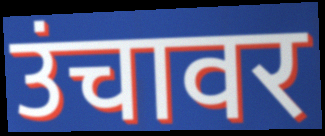
उंचावर